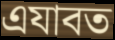
এযাবত